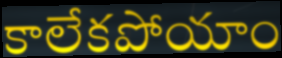
కాలేకపోయాం